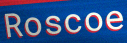
Roscoe